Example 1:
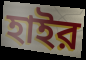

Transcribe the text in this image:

হাইর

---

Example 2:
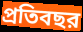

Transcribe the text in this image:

প্রতিবছর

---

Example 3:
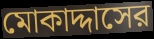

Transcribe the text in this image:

মোকাদ্দাসের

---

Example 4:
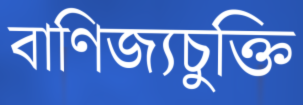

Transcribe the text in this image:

বাণিজ্যচুক্তি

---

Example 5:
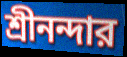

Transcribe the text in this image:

শ্রীনন্দার